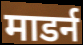
माडर्न